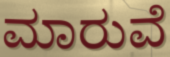
ಮಾರುವೆ